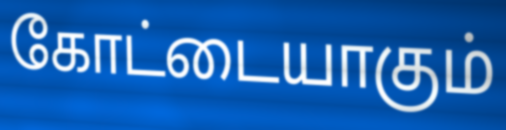
கோட்டையாகும்